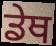
ਡੇਥ